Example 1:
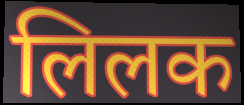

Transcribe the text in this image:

लिलक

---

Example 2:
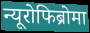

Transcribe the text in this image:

न्यूरोफिब्रोमा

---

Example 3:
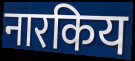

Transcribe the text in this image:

नारकिय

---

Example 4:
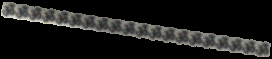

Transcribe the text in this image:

ॐॐॐॐॐॐॐॐॐॐॐॐॐॐॐॐॐॐॐॐ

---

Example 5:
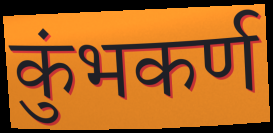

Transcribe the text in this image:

कुंभकर्ण